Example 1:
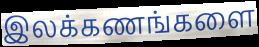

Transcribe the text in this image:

இலக்கணங்களை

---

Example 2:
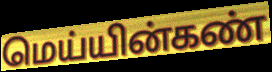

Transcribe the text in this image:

மெய்யின்கண்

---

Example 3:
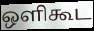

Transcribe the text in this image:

ஒளிகூட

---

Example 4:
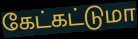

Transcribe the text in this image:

கேட்கட்டுமா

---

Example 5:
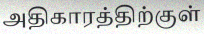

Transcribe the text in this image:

அதிகாரத்திற்குள்